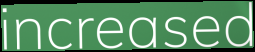
increased